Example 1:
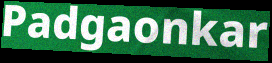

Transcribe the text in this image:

Padgaonkar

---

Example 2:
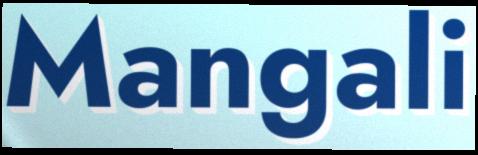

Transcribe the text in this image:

Mangali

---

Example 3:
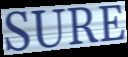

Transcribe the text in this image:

SURE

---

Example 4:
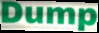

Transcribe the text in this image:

Dump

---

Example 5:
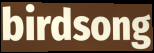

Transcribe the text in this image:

birdsong